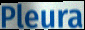
Pleura